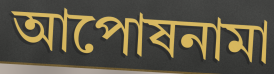
আপোষনামা